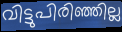
വിട്ടുപിരിഞ്ഞില്ല